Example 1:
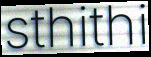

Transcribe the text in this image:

sthithi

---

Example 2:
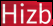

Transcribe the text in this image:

Hizb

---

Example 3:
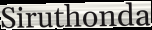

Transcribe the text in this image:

Siruthonda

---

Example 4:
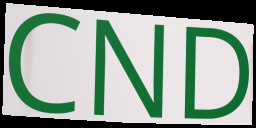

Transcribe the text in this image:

CND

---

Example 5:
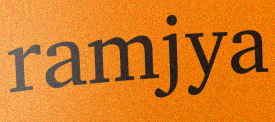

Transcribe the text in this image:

ramjya